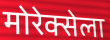
मोरेक्सेला